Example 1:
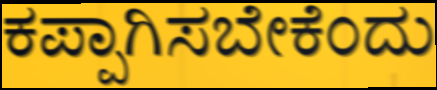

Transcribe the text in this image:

ಕಪ್ಪಾಗಿಸಬೇಕೆಂದು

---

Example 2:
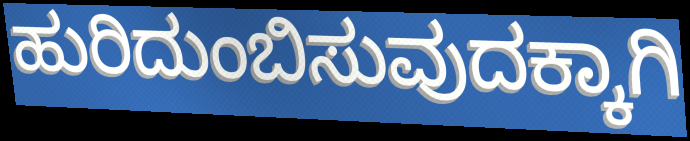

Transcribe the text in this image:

ಹುರಿದುಂಬಿಸುವುದಕ್ಕಾಗಿ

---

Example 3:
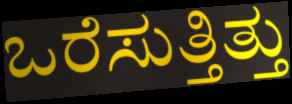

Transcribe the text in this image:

ಒರೆಸುತ್ತಿತ್ತು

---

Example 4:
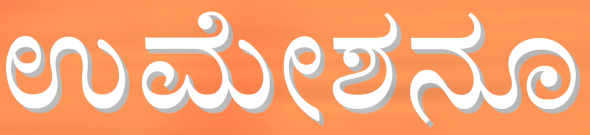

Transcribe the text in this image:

ಉಮೇಶನೂ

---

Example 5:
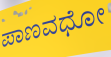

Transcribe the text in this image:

ಪಾಣವಧೋ